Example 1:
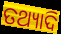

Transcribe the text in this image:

ତଥ୍ୟାଦି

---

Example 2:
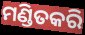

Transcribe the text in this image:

ମଣ୍ଡିତକରି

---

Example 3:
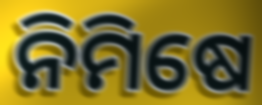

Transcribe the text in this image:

ନିମିଷେ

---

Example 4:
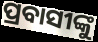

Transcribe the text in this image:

ପ୍ରବାସୀଙ୍କୁ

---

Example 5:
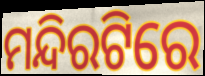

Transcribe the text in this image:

ମନ୍ଦିରଟିରେ